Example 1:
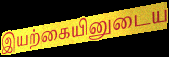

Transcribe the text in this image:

இயற்கையினுடைய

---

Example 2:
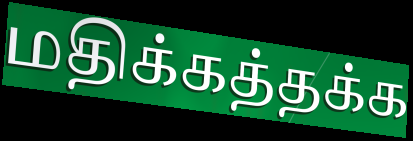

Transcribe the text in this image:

மதிக்கத்தக்க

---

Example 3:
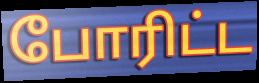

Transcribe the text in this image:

போரிட்ட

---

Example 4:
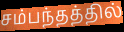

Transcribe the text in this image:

சம்பந்தத்தில்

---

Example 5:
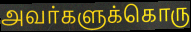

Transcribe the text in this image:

அவர்களுக்கொரு